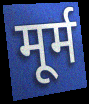
मूर्म